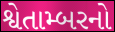
શ્વેતામ્બરનો